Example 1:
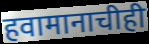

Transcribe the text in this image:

हवामानाचीही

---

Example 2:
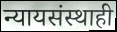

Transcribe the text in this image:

न्यायसंस्थाही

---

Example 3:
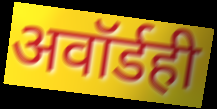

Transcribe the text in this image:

अवॉर्डही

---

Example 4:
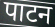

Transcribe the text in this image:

पाटन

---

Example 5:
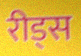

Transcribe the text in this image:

रीड्स